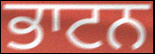
ਭਾਟਨ